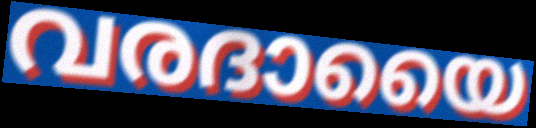
വരദായൈ